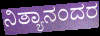
ನಿತ್ಯಾನಂದರ